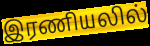
இரணியலில்